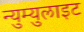
न्युम्युलाइट